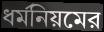
ধর্মনিয়মের